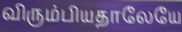
விரும்பியதாலேயே